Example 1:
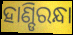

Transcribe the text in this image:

ହାଣ୍ଡିରନ୍ଧା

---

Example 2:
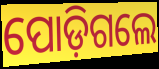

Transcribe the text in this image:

ପୋଡ଼ିଗଲେ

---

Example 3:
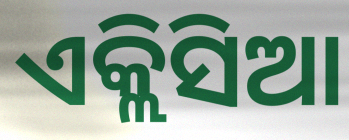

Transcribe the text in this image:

ଏକ୍ଲିସିଆ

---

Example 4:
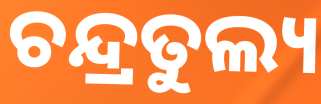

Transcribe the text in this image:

ଚନ୍ଦ୍ରତୁଲ୍ୟ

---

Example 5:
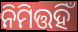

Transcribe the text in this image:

ନିମିତ୍ତହିଁ